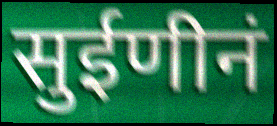
सुईणीनं